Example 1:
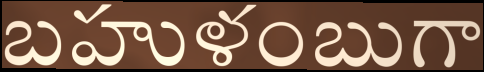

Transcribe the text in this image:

బహుళంబుగా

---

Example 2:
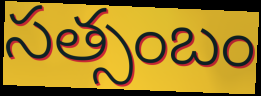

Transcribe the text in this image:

సత్సంబం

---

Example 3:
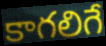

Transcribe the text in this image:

కాగలిగే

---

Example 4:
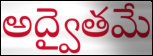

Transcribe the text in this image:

అద్వైతమే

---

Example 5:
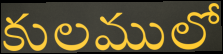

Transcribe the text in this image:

కులములో